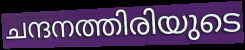
ചന്ദനത്തിരിയുടെ